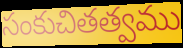
సంకుచితత్వము